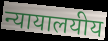
न्यायालयीय